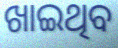
ଖାଇଥିବ